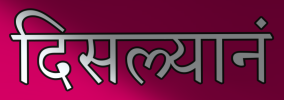
दिसल्यानं